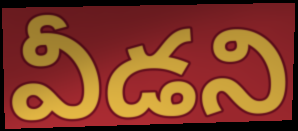
వీడని